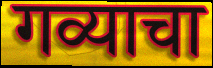
गव्याचा